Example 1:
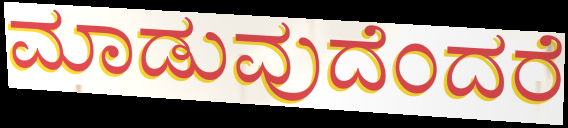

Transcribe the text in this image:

ಮಾಡುವುದೆಂದರೆ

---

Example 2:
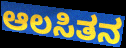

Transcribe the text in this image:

ಆಲಸಿತನ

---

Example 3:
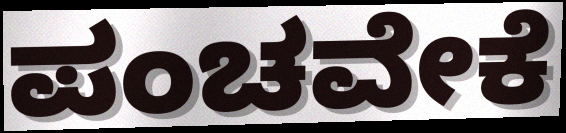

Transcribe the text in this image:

ಪಂಚವೇಕೆ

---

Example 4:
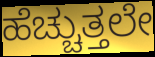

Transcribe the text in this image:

ಹೆಚ್ಚುತ್ತಲೇ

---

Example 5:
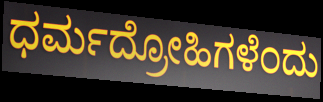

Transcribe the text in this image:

ಧರ್ಮದ್ರೋಹಿಗಳೆಂದು